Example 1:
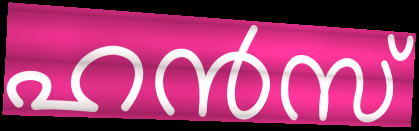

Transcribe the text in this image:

ഹൻസ്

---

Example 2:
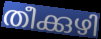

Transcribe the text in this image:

തീക്കുഴി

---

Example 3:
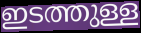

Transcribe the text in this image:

ഇടത്തുള്ള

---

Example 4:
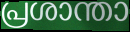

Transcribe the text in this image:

പ്രശാന്താ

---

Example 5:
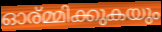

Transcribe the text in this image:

ഓര്മ്മിക്കുകയും